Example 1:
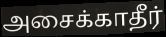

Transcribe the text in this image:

அசைக்காதீர்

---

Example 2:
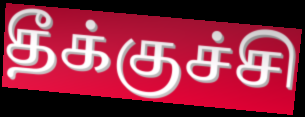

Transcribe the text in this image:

தீக்குச்சி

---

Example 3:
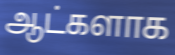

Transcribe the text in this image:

ஆட்களாக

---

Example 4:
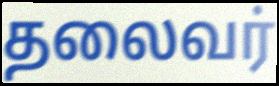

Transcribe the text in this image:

தலைவர்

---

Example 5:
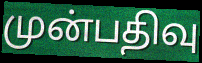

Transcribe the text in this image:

முன்பதிவு